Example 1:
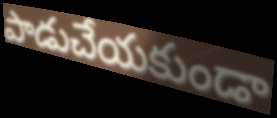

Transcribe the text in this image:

పాడుచేయకుండా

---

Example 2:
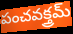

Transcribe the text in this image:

పంచవక్త్రమ్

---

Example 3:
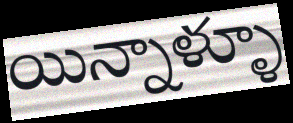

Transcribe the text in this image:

యిన్నాళ్ళూ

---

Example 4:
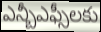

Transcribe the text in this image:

ఎన్బీఎఫ్సీలకు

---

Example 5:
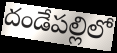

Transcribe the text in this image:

దండేపల్లిలో